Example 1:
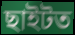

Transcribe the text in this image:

ছাইটত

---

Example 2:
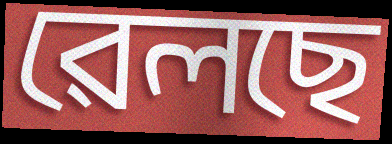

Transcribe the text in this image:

ৱেলছে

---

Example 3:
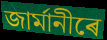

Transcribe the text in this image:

জাৰ্মানীৰে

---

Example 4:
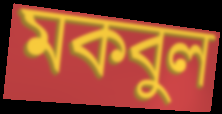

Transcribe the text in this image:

মকবুল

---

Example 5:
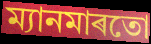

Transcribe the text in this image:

ম্যানমাৰতো